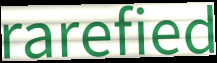
rarefied